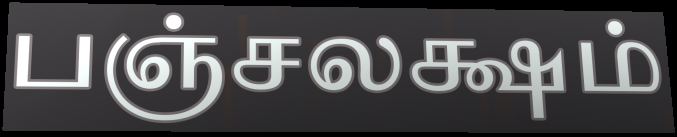
பஞ்சலக்ஷம்